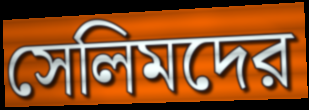
সেলিমদের